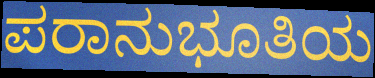
ಪರಾನುಭೂತಿಯ